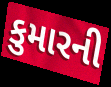
કુમારની